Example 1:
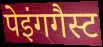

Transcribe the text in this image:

पेइंगगैस्ट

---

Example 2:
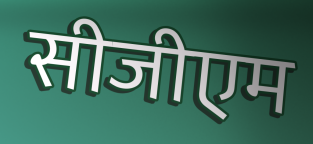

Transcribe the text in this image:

सीजीएम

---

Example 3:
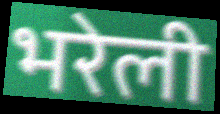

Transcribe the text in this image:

भरेली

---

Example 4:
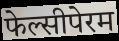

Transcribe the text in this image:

फेल्सीपेरम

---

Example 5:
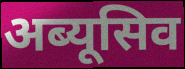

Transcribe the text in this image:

अब्यूसिव